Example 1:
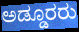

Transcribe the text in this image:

ಅಡ್ಡೂರರು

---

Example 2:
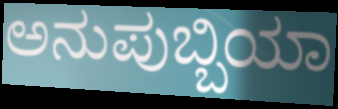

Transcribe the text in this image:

ಅನುಪುಬ್ಬಿಯಾ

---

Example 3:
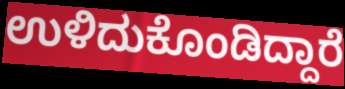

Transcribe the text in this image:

ಉಳಿದುಕೊಂಡಿದ್ದಾರೆ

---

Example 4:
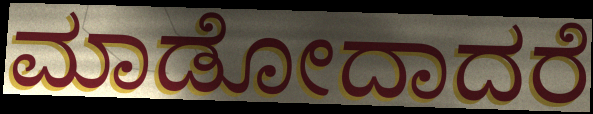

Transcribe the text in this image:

ಮಾಡೋದಾದರೆ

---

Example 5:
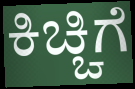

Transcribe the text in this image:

ಕಿಚ್ಚಿಗೆ